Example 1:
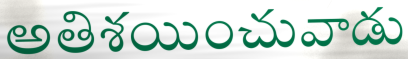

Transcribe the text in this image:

అతిశయించువాడు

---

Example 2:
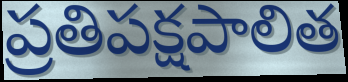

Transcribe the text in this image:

ప్రతిపక్షపాలిత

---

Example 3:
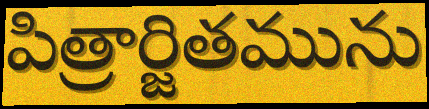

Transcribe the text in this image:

పిత్రార్జితమును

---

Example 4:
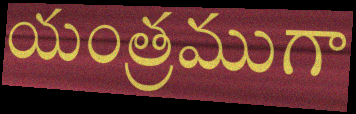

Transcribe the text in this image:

యంత్రముగా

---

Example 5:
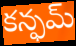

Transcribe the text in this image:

కన్ఫమ్